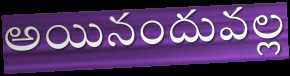
అయినందువల్ల